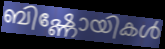
ബിഷ്ണോയികൾ